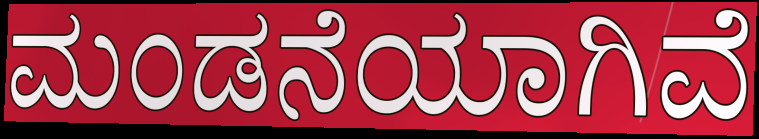
ಮಂಡನೆಯಾಗಿವೆ